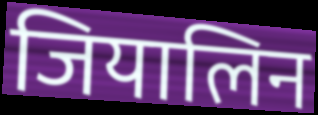
जियालिन